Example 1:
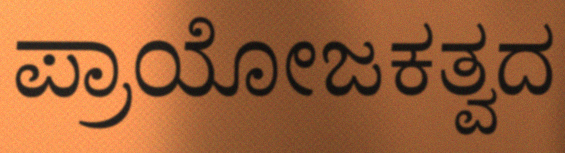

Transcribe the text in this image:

ಪ್ರಾಯೋಜಕತ್ವದ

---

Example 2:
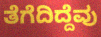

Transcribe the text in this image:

ತೆಗೆದಿದ್ದೆವು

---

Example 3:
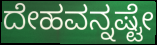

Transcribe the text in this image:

ದೇಹವನ್ನಷ್ಟೇ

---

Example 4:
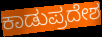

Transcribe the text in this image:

ಕಾಡುಪ್ರದೇಶ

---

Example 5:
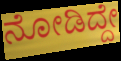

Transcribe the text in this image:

ನೋಡಿದ್ದೇ